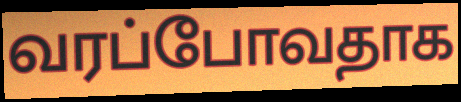
வரப்போவதாக